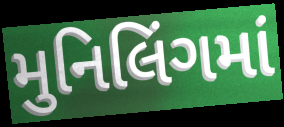
મુનિલિંગમાં